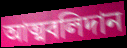
আত্মবলিদান